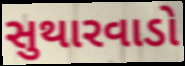
સુથારવાડો